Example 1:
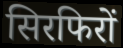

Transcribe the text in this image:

सिरफिरों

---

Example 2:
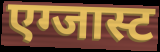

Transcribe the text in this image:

एग्जास्ट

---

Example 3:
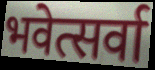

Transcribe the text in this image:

भवेत्सर्वा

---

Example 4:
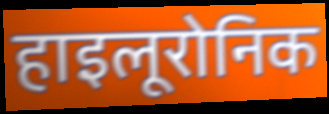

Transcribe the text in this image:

हाइलूरोनिक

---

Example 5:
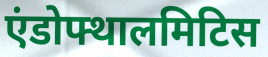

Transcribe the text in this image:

एंडोफ्थालमिटिस